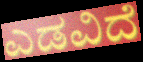
ಎಡವಿದೆ